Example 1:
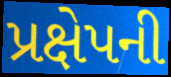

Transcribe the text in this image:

પ્રક્ષેપની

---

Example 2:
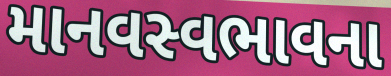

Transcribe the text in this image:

માનવસ્વભાવના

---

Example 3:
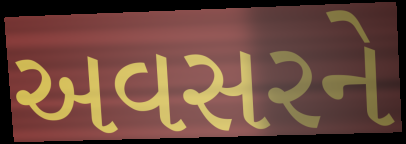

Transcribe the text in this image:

અવસરને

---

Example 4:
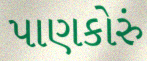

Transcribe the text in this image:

પાણકોરું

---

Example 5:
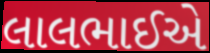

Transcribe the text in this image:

લાલભાઈએ